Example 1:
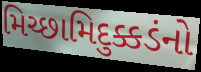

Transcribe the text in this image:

મિચ્છામિદુક્કડંનો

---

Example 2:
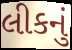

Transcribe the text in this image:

લીકનું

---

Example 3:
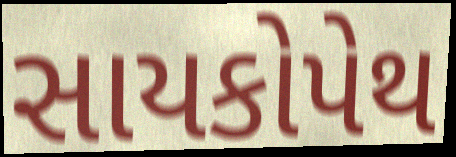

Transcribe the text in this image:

સાયકોપેથ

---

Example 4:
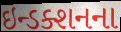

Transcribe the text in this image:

ઇન્ડક્શનના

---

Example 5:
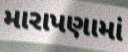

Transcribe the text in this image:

મારાપણામાં